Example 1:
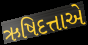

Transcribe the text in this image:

ઋષિદત્તાએ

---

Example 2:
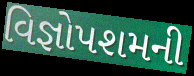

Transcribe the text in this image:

વિજ્ઞોપશમની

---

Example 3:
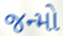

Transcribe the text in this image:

જન્મો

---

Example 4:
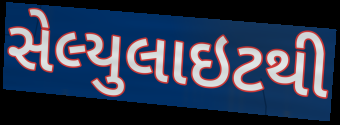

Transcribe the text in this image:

સેલ્યુલાઇટથી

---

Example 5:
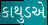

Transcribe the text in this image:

કાથુડએ